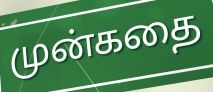
முன்கதை